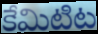
కేమిటిట